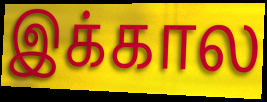
இக்கால